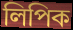
লিপিক